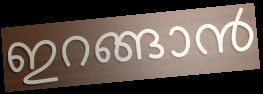
ഇറങ്ങാൻ